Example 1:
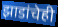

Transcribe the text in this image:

झाडांचेही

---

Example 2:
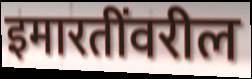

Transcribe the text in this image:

इमारतींवरील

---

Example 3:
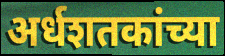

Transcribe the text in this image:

अर्धशतकांच्या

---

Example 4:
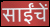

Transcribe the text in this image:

साईंचें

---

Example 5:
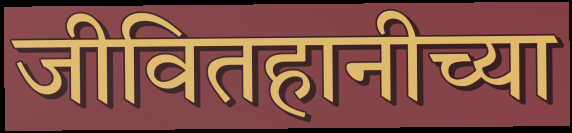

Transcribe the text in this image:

जीवितहानीच्या